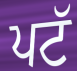
ਪਟੱ